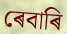
ৰেবাৰি